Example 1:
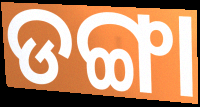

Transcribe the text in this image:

ଡଙ୍ଗା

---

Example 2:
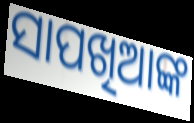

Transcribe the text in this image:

ସାପଖିଆଙ୍କ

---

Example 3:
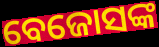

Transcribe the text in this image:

ବେଜୋସଙ୍କ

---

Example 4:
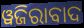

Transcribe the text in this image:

ୱଜିରାବାଦ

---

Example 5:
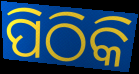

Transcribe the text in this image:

ପିଠିକି